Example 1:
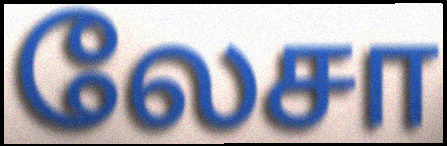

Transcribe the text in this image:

லேசா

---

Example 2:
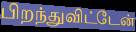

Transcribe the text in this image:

பிறந்துவிட்டேன்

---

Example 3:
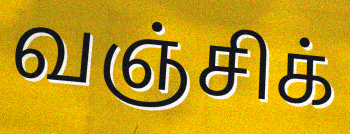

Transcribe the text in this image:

வஞ்சிக்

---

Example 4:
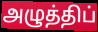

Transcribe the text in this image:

அழுத்திப்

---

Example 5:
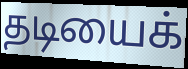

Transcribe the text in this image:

தடியைக்